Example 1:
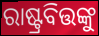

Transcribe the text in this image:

ରାଷ୍ଟ୍ରବିତ୍ତଙ୍କୁ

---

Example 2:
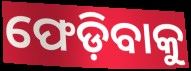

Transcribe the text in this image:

ଫେଡ଼ିବାକୁ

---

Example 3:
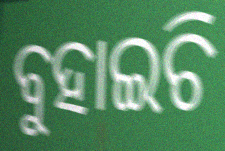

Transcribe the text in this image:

ବୁହାଇଚି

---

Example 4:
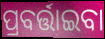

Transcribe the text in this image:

ପ୍ରବର୍ତ୍ତାଇବା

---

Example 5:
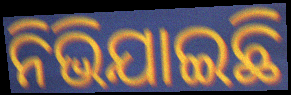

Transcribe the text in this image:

ନିଭିଯାଇଛି